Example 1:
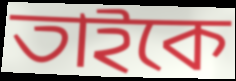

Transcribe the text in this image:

তাইকে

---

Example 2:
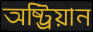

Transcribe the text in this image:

অষ্ট্ৰিয়ান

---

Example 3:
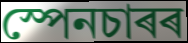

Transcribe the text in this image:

স্পেনচাৰৰ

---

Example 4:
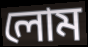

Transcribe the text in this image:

লোম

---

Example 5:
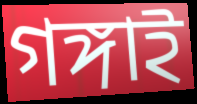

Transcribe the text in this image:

গঙ্গাই